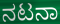
ನಟನಾ